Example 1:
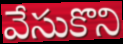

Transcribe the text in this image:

వేసుకొని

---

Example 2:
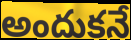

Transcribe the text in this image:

అందుకనే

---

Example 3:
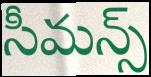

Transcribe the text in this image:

సీమన్స్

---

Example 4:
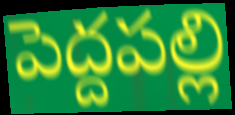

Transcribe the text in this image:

పెద్దపల్లి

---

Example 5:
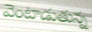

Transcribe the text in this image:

వెంటాడుతున్న